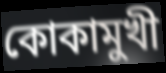
কোকামুখী